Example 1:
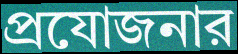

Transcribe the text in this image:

প্রযোজনার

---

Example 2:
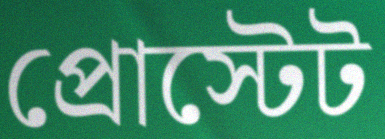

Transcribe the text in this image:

প্রোস্টেট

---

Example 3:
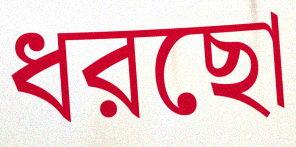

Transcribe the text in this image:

ধরছো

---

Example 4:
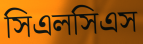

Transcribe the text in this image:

সিএলসিএস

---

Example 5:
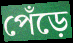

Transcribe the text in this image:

পেঁড়ে